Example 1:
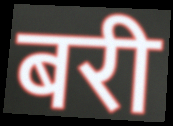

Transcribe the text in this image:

बरी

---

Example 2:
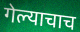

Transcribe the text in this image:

गेल्याचाच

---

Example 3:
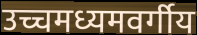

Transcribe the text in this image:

उच्चमध्यमवर्गीय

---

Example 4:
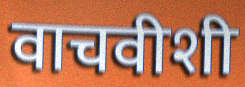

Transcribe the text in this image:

वाचवीशी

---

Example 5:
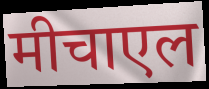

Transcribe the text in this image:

मीचाएल